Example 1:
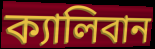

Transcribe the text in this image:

ক্যালিবান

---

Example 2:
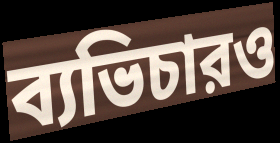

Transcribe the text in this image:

ব্যভিচারও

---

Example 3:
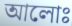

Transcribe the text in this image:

আলোঃ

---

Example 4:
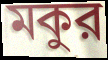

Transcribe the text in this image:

মকুর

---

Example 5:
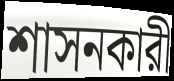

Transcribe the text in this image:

শাসনকারী